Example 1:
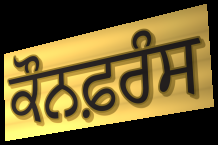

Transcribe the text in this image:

ਕੌਨਫ਼ਰੰਸ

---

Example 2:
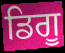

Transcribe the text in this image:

ਡਿਗੂ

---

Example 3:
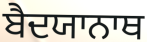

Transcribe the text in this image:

ਬੈਦਯਾਨਾਥ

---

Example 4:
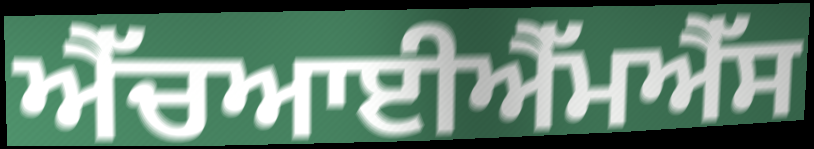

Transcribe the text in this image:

ਐੱਚਆਈਐੱਮਐੱਸ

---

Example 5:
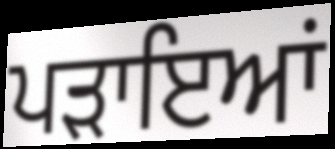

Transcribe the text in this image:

ਪੜਾਇਆਂ